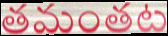
తమంతట